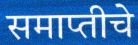
समाप्तीचे